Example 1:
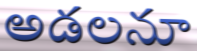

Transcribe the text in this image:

అడలనూ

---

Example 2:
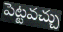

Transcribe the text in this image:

పెట్టవచ్చు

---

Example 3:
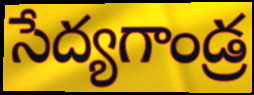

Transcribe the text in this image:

సేద్యగాండ్ర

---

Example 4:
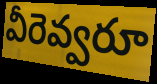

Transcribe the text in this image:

వీరెవ్వరూ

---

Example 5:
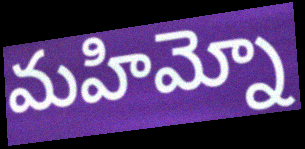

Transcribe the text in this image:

మహిమ్నో